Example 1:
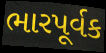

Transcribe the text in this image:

ભારપૂર્વક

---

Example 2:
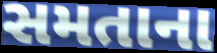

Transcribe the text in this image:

સમતાના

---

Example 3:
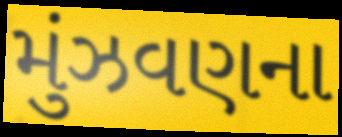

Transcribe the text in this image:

મુંઝવણના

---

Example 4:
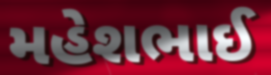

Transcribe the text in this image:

મહેશભાઈ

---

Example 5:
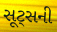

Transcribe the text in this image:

સૂટ્સની